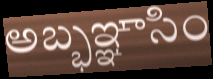
అబ్భఞ్ఞాసిం